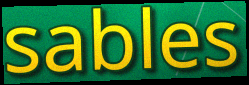
sables